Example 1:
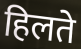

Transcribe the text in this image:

हिलते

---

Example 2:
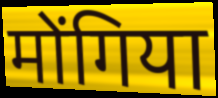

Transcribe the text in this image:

मोंगिया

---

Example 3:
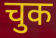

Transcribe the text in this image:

चुक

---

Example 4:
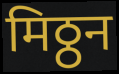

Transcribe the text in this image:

मिठ्ठन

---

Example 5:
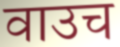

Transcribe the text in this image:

वाउच